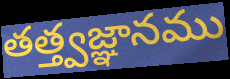
తత్త్వజ్ఞానము